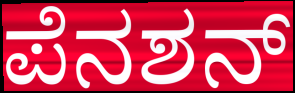
ಪೆನಶನ್